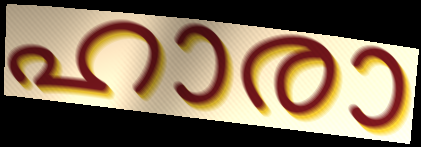
ഹാരാ